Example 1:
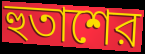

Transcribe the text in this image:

হুতাশের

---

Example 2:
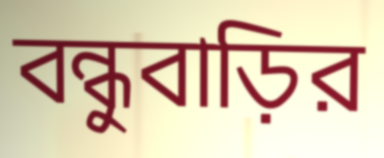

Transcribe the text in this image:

বন্ধুবাড়ির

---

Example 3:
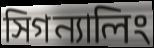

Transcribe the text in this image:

সিগন্যালিং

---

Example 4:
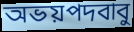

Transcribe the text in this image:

অভয়পদবাবু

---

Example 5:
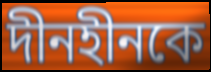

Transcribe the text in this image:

দীনহীনকে